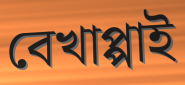
বেখাপ্পাই